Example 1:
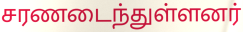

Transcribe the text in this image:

சரணடைந்துள்ளனர்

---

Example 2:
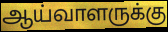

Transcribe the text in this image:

ஆய்வாளருக்கு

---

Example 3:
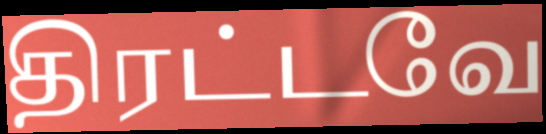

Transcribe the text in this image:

திரட்டவே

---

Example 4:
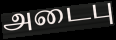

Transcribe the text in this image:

அடைபு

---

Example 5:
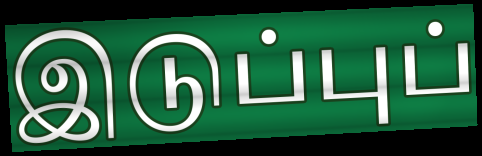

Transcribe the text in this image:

இடுப்புப்